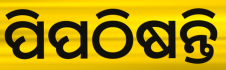
ପିପଠିଷନ୍ତି